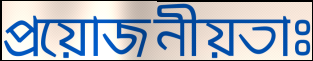
প্ৰয়োজনীয়তাঃ